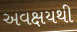
અવક્ષયથી